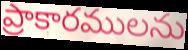
ప్రాకారములను